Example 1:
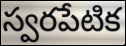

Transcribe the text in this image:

స్వరపేటిక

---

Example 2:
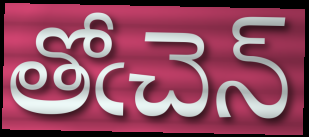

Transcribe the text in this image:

తోఁచెన్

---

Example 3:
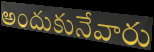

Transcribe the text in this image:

అందుకునేవారు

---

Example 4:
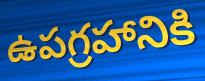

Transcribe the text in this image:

ఉపగ్రహానికి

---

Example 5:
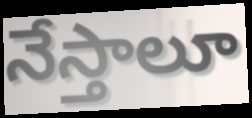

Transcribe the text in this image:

నేస్తాలూ